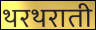
थरथराती